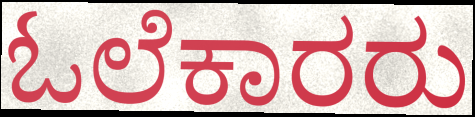
ಓಲೆಕಾರರು